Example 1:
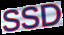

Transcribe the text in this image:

SSD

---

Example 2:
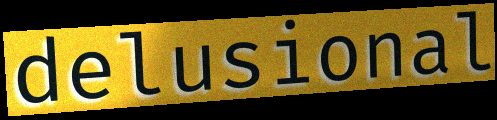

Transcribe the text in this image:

delusional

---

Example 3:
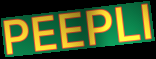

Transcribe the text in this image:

PEEPLI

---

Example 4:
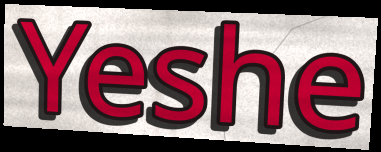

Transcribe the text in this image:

Yeshe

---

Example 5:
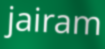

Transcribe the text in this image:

jairam